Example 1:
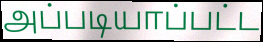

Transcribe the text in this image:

அப்படியாப்பட்ட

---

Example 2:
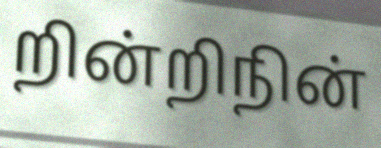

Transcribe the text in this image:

றின்றிநின்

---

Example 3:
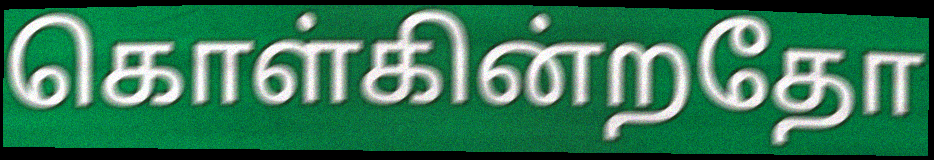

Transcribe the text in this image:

கொள்கின்றதோ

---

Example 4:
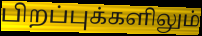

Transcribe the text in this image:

பிறப்புக்களிலும்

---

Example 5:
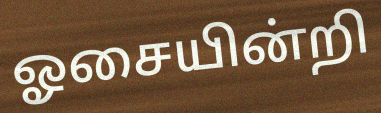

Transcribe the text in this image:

ஓசையின்றி